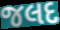
જલદ